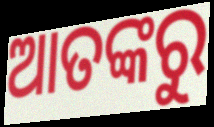
ଆତଙ୍କରୁ